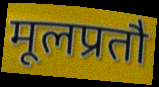
मूलप्रतौ